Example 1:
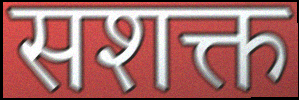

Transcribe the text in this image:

सशक्त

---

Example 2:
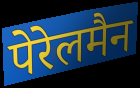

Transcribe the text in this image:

पेरेलमैन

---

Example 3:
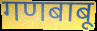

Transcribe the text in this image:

गणबाबू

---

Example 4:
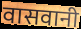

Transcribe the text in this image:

वासवानी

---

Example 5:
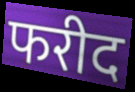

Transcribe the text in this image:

फरीद